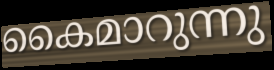
കൈമാറുന്നു